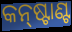
କନ୍‌ଷ୍ଟାଣ୍ଟ